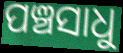
ପଞ୍ଚସାଧୁ